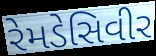
રેમડેસિવીર